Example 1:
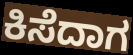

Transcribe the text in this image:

ಕಿಸೆದಾಗ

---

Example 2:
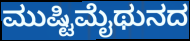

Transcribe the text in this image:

ಮುಷ್ಟಿಮೈಥುನದ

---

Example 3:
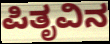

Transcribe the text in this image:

ಪಿತೃವಿನ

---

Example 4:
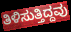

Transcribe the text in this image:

ತಿಳಿಸುತ್ತಿದ್ದವು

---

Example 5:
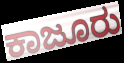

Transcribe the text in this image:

ಕಾಜೂರು